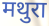
मथुरा